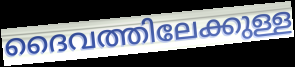
ദൈവത്തിലേക്കുള്ള